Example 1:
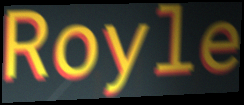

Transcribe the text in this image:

Royle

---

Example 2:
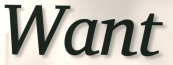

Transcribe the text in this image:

Want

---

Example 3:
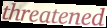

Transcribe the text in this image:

threatened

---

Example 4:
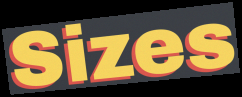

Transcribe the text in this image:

Sizes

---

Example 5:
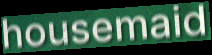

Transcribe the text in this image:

housemaid